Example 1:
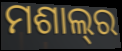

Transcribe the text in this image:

ମଶାଲ୍‌ର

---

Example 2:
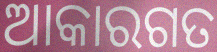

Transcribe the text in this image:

ଆକାରଗତ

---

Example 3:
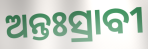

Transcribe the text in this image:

ଅନ୍ତଃସ୍ରାବୀ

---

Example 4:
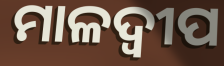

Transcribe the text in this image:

ମାଳଦ୍ବୀପ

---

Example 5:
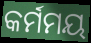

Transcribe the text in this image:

କର୍ମମୟ